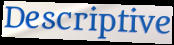
Descriptive